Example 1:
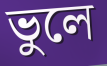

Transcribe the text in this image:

ভুলে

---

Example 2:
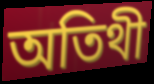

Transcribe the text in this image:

অতিথী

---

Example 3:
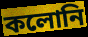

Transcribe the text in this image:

কলোনি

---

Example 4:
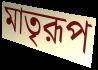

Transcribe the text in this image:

মাতৃরূপ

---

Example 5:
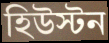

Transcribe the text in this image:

হিউস্টন